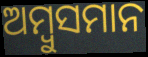
ଅମ୍ବୁସମାନ